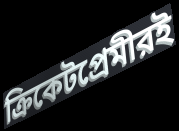
ক্রিকেটপ্রেমীরই